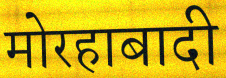
मोरहाबादी